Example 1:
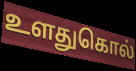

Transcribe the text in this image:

உளதுகொல்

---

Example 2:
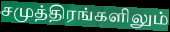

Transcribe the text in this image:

சமுத்திரங்களிலும்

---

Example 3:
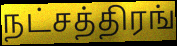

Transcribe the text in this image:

நட்சத்திரங்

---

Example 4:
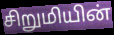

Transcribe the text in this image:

சிறுமியின்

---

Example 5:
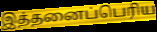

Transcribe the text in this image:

இத்தனைப்பெரிய